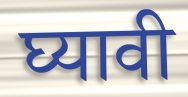
घ्यावी